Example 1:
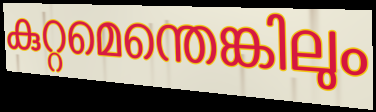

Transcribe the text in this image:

കുറ്റമെന്തെങ്കിലും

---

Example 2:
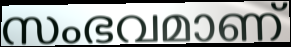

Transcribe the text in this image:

സംഭവമാണ്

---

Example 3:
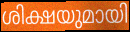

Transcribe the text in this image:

ശിക്ഷയുമായി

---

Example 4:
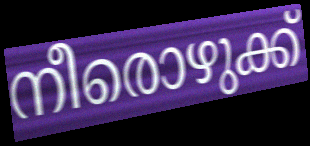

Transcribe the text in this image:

നീരൊഴുക്ക്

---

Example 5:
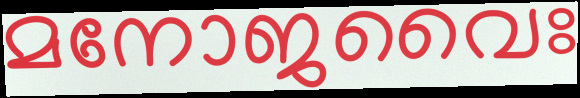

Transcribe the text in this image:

മനോജവൈഃ